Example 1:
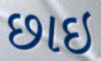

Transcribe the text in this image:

છાઇ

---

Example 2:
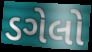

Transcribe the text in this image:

ડગેલો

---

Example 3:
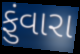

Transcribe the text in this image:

ફુંવારા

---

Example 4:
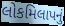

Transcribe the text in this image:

લોકમિલાપનું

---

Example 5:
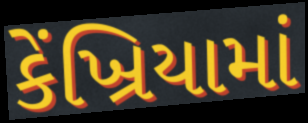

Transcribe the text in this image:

કેંખ્રિયામાં